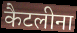
कैटलीना